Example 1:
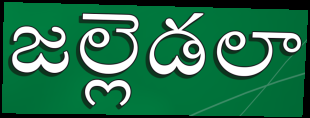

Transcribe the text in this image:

జల్లెడలా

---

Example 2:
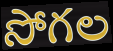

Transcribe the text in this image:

సోగల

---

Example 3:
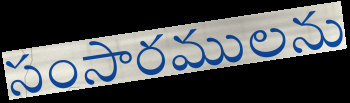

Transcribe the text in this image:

సంసారములను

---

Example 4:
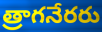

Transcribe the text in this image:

త్రాగనేరరు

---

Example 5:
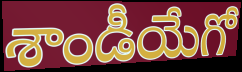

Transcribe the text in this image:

శాండీయేగో